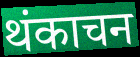
थंकाचन